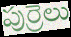
పుర్రెలు